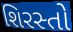
શિરસ્તો